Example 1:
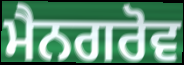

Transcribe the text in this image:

ਮੈਨਗਰੋਵ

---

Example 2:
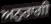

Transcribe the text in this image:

ਅਨੁਰਾਗੀ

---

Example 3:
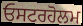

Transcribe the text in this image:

ਓਸਟਰਹੋਲਮ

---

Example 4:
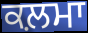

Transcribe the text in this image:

ਕਲ਼ਮਾ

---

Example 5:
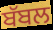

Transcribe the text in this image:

ਬੱਬਲ